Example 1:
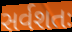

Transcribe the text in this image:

સર્વશતઃ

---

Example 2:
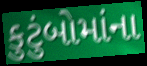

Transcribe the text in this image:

કુટુંબોમાંના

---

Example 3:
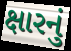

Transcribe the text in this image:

ક્ષારનું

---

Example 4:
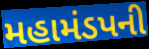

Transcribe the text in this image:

મહામંડપની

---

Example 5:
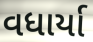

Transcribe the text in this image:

વધાર્યા